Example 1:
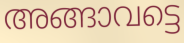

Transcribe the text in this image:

അങ്ങാവട്ടെ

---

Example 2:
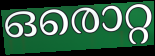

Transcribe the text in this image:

ഒരൊറ്റ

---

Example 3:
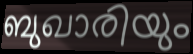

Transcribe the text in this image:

ബുഖാരിയും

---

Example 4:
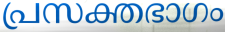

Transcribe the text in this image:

പ്രസക്തഭാഗം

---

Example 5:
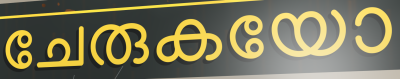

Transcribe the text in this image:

ചേരുകയോ